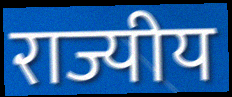
राज्यीय